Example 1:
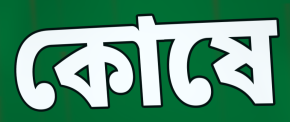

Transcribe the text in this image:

কোষে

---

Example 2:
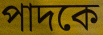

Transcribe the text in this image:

পাদকে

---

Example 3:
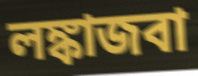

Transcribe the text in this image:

লঙ্কাজবা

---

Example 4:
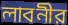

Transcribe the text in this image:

লাবনীর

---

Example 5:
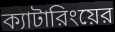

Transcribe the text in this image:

ক্যাটারিংয়ের